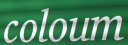
coloum